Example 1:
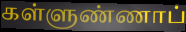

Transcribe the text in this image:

கள்ளுண்ணாப்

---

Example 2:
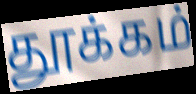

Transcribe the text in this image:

தூக்கம்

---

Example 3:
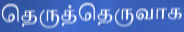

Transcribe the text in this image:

தெருத்தெருவாக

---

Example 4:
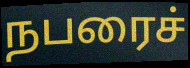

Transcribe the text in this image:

நபரைச்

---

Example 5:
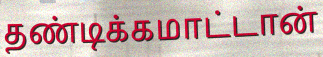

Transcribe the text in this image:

தண்டிக்கமாட்டான்